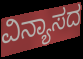
ವಿನ್ಯಾಸದ